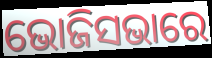
ଭୋଜିସଭାରେ